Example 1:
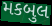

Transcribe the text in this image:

મકબુલ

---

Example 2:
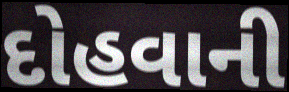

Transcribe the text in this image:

દોહવાની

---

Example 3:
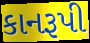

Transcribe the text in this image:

કાનરૂપી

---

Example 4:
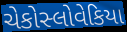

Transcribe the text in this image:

ચેકોસ્લોવેકિયા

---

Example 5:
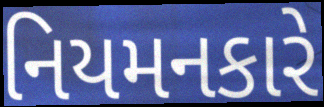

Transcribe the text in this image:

નિયમનકારે